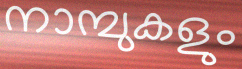
നാമ്പുകളും